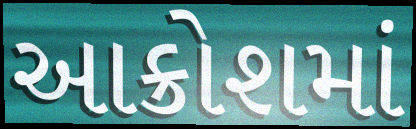
આક્રોશમાં